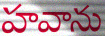
హవాను